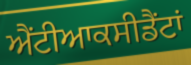
ਐਂਟੀਆਕਸੀਡੈਂਟਾਂ